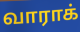
வாராக்